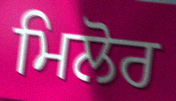
ਮਿਲੋਰ